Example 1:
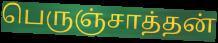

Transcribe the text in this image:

பெருஞ்சாத்தன்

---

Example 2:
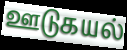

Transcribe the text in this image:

ஊடுகயல்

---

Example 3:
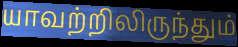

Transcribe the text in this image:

யாவற்றிலிருந்தும்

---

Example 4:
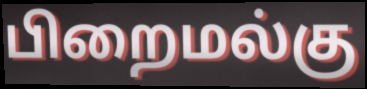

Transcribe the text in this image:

பிறைமல்கு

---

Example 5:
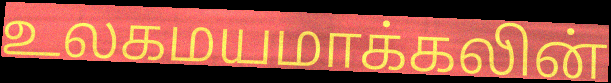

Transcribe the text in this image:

உலகமயமாக்கலின்